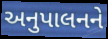
અનુપાલનને